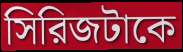
সিরিজটাকে